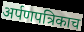
अर्पणपत्रिकाच